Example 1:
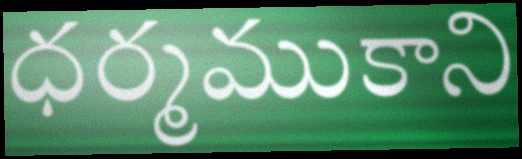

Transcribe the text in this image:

ధర్మముకాని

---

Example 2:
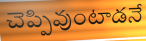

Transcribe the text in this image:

చెప్పివుంటాడనే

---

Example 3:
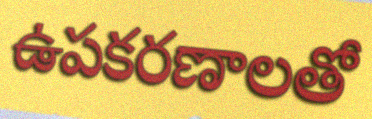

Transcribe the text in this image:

ఉపకరణాలతో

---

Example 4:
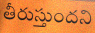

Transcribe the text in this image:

తీరుస్తుందని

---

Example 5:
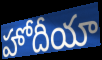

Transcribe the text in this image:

హోదీయా